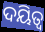
ଦୟିତ୍ୱ